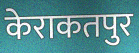
केराकतपुर